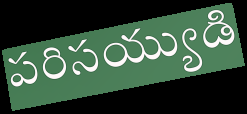
పరిసయ్యుడి